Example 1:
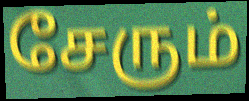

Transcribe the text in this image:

சேரும்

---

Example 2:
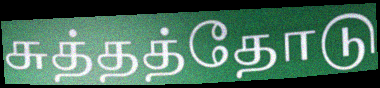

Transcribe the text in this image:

சுத்தத்தோடு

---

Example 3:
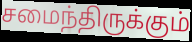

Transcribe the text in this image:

சமைந்திருக்கும்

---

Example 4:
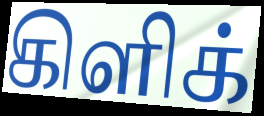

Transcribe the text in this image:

கிளிக்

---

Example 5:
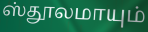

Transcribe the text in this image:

ஸ்தூலமாயும்